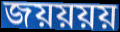
জয়য়য়য়